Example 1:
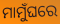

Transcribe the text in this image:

ମାମୁଁଘରେ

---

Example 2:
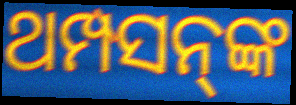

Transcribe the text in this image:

ଥମ୍ପସନ୍‌ଙ୍କ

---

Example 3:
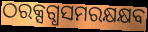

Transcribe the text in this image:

ଠରକ୍ସଗ୍ଧସମରକ୍ଷକ୍ଷବ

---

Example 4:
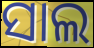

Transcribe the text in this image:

ସାଲ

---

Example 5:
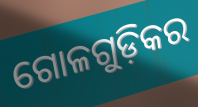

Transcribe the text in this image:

ଗୋଳଗୁଡ଼ିକର